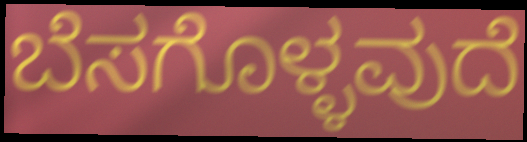
ಬೆಸಗೊಳ್ಳವುದೆ